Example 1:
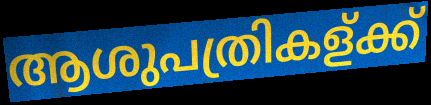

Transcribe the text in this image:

ആശുപത്രികള്ക്ക്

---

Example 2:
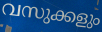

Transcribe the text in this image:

വസുക്കളും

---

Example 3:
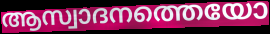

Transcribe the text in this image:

ആസ്വാദനത്തെയോ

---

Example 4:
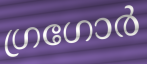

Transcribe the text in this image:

ഗ്രഗോർ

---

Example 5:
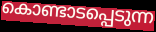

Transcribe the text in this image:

കൊണ്ടാടപ്പെടുന്ന